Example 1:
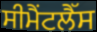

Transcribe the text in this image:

ਸੀਮੈਂਟਲੈੱਸ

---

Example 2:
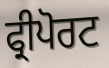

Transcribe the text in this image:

ਫ੍ਰੀਪੋਰਟ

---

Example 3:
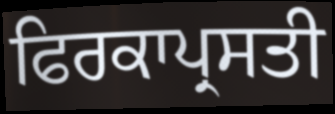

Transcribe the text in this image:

ਫਿਰਕਾਪ੍ਰਸਤੀ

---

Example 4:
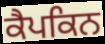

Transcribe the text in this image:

ਕੈਪਕਿਨ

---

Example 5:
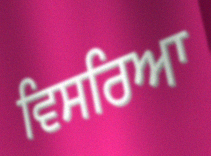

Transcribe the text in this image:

ਵਿਸਰਿਆ